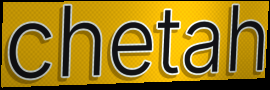
chetah